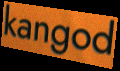
kangod